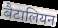
बैटालियन